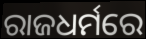
ରାଜଧର୍ମରେ